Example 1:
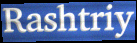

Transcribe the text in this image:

Rashtriy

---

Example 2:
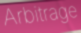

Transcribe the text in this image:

Arbitrage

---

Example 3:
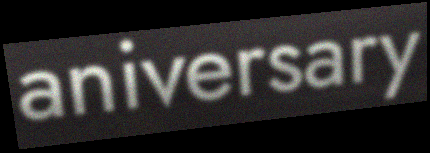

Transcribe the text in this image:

aniversary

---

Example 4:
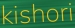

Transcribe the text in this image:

kishori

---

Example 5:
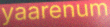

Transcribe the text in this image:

yaarenum